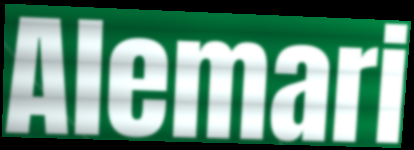
Alemari